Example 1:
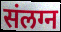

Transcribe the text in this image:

संलग्न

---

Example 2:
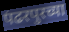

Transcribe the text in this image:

पंढरपुरच्या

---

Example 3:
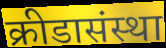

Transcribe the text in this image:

क्रीडासंस्था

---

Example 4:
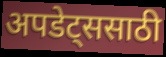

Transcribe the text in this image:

अपडेट्ससाठी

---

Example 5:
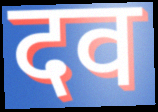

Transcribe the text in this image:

दव